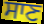
ਸਾਣ